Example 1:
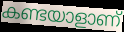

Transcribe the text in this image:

കണ്ടയാളാണ്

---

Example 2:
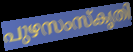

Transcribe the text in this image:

പുഴസംസ്കൃതി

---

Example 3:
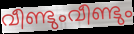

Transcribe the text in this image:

വീണ്ടുംവീണ്ടും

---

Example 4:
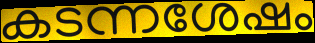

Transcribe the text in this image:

കടന്നശേഷം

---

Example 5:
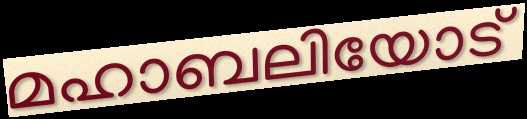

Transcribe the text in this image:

മഹാബലിയോട്